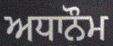
ਅਧਾਨੌਮ